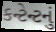
કન્ટેન્ટનું